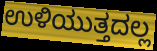
ಉಳಿಯುತ್ತದಲ್ಲ